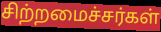
சிற்றமைச்சர்கள்